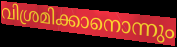
വിശ്രമിക്കാനൊന്നും